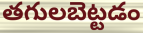
తగులబెట్టడం